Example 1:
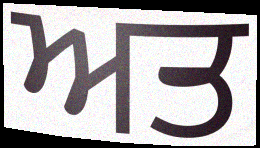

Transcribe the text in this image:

ਅਤ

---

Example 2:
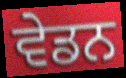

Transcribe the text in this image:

ਵੇਡਨ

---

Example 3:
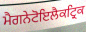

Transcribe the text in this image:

ਮੈਗਨੇਟੋਇਲੈਕਟ੍ਰਿਕ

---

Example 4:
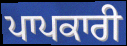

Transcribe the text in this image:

ਪਾਪਕਾਰੀ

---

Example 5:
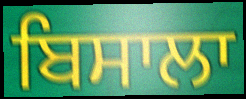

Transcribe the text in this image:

ਬਿਸਾਲਾ